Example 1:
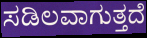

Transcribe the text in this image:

ಸಡಿಲವಾಗುತ್ತದೆ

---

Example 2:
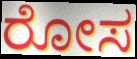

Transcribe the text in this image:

ರೋಸ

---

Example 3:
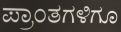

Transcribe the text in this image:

ಪ್ರಾಂತಗಳಿಗೂ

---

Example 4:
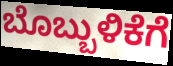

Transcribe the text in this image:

ಬೊಬ್ಬುಳಿಕೆಗೆ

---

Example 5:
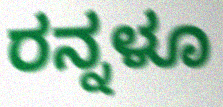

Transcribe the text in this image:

ರನ್ನಳೂ